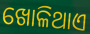
ଖୋଳିଥାଏ